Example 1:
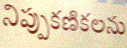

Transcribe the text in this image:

నిప్పుకణికలను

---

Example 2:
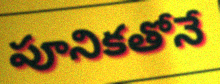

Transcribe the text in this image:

పూనికతోనే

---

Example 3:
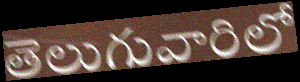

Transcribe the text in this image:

తెలుగువారిలో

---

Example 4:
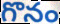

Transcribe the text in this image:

గొనం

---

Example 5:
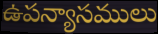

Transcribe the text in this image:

ఉపన్యాసములు